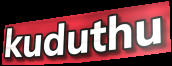
kuduthu